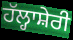
ਹੱਲ੍ਹਾਸ਼ੇਰੀ